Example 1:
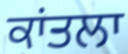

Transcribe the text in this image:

ਕਾਂਤਲਾ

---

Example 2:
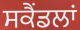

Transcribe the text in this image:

ਸਕੈਂਡਲਾਂ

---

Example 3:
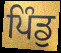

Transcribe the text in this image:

ਪਿੰਡੁ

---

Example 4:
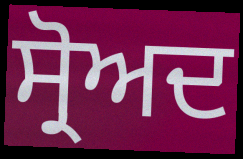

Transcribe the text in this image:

ਸ੍ਰੋਅਦ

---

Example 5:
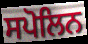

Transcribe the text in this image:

ਸਪੋਲਿਨ